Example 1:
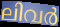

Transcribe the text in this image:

ലിവർ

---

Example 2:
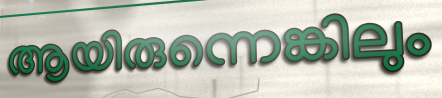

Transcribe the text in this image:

ആയിരുന്നെങ്കിലും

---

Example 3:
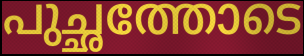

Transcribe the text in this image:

പുച്ഛത്തോടെ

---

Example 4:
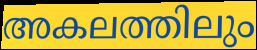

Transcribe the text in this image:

അകലത്തിലും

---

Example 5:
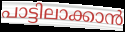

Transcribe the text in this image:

പാട്ടിലാക്കാൻ